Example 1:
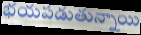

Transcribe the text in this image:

భయపడుతున్నాయి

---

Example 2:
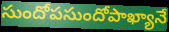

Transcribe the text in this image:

సుందోపసుందోపాఖ్యానే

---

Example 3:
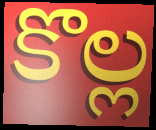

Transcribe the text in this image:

కొల్ల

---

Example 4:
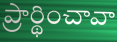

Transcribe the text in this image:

ప్రార్థించావా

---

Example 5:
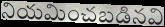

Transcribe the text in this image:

నియమించబడినవి